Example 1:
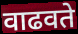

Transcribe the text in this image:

वाढवते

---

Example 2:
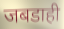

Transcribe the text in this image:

जबडाही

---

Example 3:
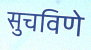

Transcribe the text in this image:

सुचविणे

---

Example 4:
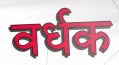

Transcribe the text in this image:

वर्धक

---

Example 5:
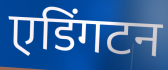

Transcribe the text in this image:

एडिंगटन